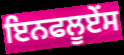
ਇਨਫਲੂਏਂਸ